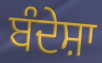
ਬੰਦੇਸ਼ਾ